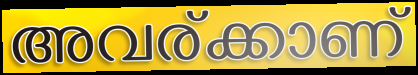
അവര്ക്കാണ്